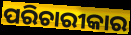
ପରିଚାରୀକାର